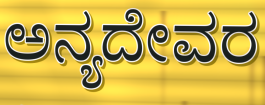
ಅನ್ಯದೇವರ